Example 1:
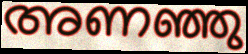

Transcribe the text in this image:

അണഞ്ഞു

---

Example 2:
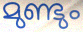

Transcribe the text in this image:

മുണ്ടും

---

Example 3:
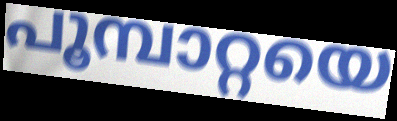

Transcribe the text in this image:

പൂമ്പാറ്റയെ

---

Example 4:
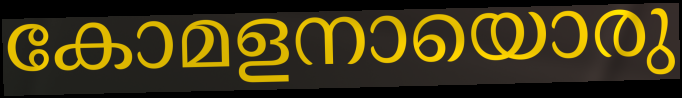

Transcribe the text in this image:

കോമളനായൊരു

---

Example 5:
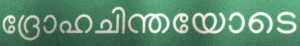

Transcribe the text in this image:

ദ്രോഹചിന്തയോടെ